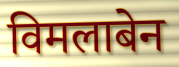
विमलाबेन